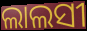
ଲାଲସୀ